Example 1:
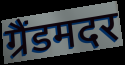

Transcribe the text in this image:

ग्रैंडमदर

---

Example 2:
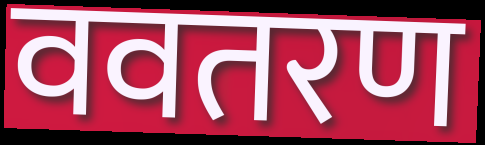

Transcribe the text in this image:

ववतरण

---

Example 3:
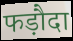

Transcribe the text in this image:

फड़ौदा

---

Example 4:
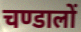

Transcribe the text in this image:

चण्डालों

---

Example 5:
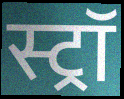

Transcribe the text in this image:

स्ट्रॉ